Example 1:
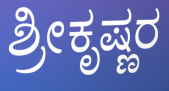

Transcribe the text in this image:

ಶ್ರೀಕೃಷ್ಣರ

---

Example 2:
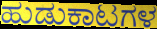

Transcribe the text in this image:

ಹುಡುಕಾಟಗಳ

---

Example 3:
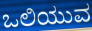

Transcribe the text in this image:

ಒಲಿಯುವ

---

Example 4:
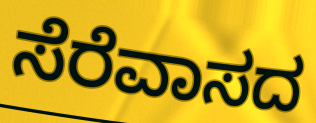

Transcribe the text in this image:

ಸೆರೆವಾಸದ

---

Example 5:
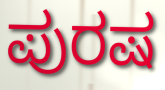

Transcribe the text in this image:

ಪುರಷ